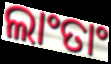
ଲାଂତାଂ